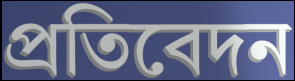
প্ৰতিবেদন